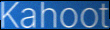
Kahoot